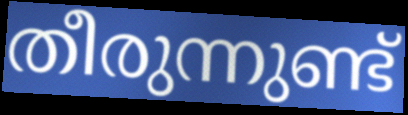
തീരുന്നുണ്ട്